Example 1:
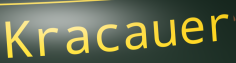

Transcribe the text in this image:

Kracauer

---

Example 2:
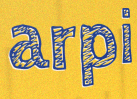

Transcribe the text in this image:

arpi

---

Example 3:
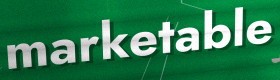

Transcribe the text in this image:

marketable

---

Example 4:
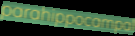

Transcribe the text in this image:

parahippocampal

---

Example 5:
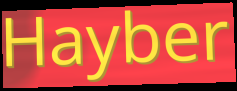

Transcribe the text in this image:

Hayber